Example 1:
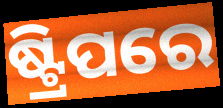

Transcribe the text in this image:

ଷ୍ଟ୍ରିପରେ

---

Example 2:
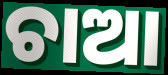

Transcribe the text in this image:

ଚାଆ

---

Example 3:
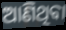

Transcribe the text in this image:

ଆଣିଥିବା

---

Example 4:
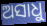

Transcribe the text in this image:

ଅସାଧୁ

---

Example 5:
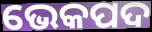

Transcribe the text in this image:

ଭେକପଦ